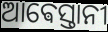
ଆଵେସ୍ତାନୀ